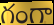
గంగా